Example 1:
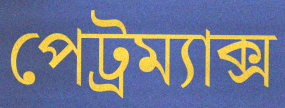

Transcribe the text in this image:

পেট্রম্যাক্স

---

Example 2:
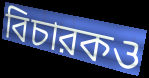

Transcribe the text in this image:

বিচারকও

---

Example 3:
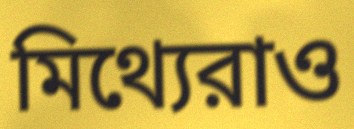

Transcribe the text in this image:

মিথ্যেরাও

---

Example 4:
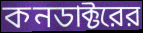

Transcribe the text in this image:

কনডাক্টরের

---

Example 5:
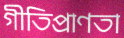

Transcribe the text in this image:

গীতিপ্রাণতা